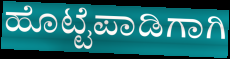
ಹೊಟ್ಟೆಪಾಡಿಗಾಗಿ